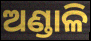
ଅଣ୍ଡାଳି